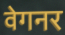
वेगनर